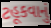
ટહૂકવાનું